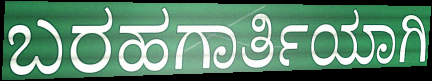
ಬರಹಗಾರ್ತಿಯಾಗಿ